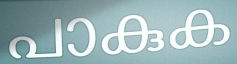
പാകുക